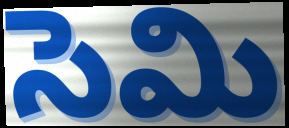
సెమి